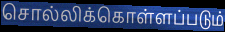
சொல்லிக்கொள்ளப்படும்